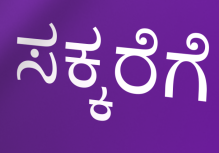
ಸಕ್ಕರೆಗೆ